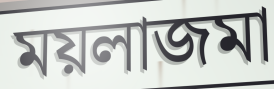
ময়লাজমা